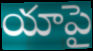
యాపై